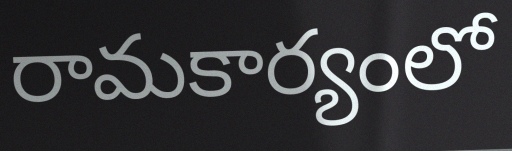
రామకార్యంలో